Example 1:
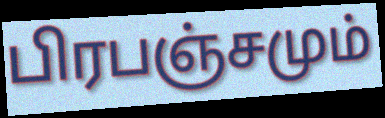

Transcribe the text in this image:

பிரபஞ்சமும்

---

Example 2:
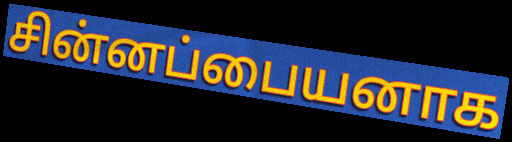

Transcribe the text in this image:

சின்னப்பையனாக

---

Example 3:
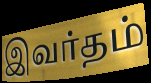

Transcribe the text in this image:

இவர்தம்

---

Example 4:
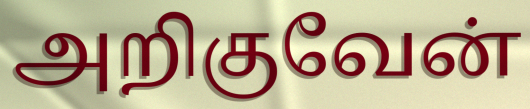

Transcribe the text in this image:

அறிகுவேன்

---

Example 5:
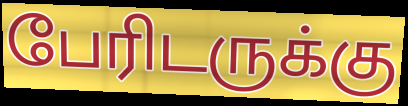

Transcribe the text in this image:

பேரிடருக்கு